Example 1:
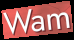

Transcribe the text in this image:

Wam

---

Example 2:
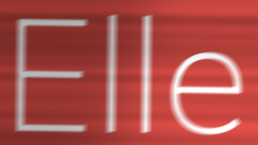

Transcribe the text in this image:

Elle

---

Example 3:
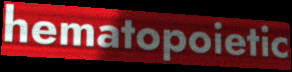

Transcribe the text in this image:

hematopoietic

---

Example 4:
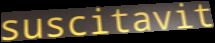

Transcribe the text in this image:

suscitavit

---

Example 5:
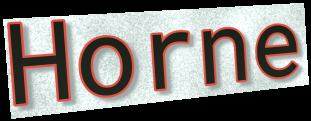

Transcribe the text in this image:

Horne